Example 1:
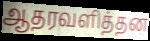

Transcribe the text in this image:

ஆதரவளித்தன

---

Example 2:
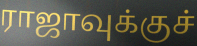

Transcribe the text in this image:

ராஜாவுக்குச்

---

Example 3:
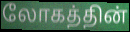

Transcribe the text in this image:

லோகத்தின்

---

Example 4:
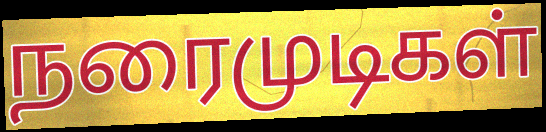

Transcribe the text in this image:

நரைமுடிகள்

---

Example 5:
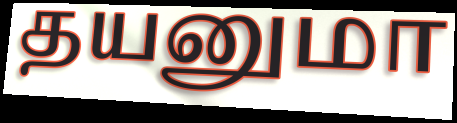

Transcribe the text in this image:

தயனுமா